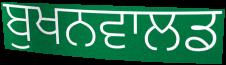
ਬੁਖਨਵਾਲਡ